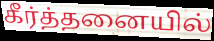
கீர்த்தனையில்